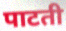
पाटती